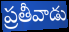
ప్రతీవాడు